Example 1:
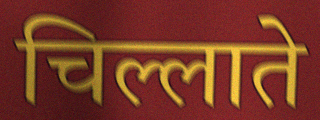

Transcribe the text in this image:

चिल्लाते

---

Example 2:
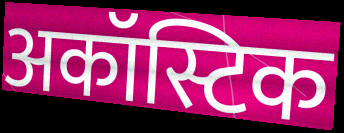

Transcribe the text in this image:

अकॉस्टिक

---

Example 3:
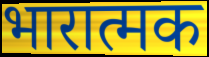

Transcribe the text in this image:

भारात्मक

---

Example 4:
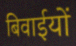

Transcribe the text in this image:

बिवाईयों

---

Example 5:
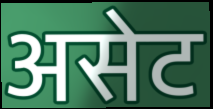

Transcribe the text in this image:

असेट